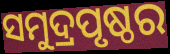
ସମୁଦ୍ରପୃଷ୍ଠର